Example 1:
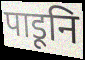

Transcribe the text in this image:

पाडूनि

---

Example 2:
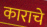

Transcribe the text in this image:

काराचे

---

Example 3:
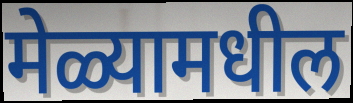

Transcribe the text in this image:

मेळ्यामधील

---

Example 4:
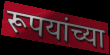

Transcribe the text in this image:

रूपयांच्या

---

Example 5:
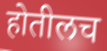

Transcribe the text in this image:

होतीलच